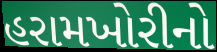
હરામખોરીનો